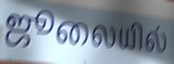
ஜூலையில்